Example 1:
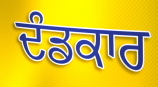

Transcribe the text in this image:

ਦੰਡਕਾਰ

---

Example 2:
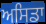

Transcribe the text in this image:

ਅਸਿਡਾ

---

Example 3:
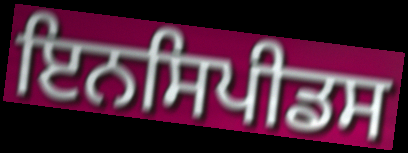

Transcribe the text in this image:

ਇਨਸਿਪੀਡਸ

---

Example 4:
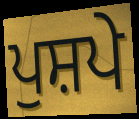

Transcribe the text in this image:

ਪੁਸ਼ਪੇ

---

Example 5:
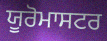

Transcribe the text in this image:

ਯੂਰੋਮਾਸਟਰ